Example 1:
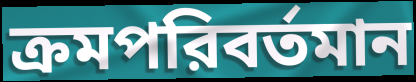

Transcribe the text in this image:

ক্রমপরিবর্তমান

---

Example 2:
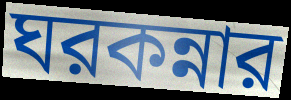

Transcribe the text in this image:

ঘরকন্নার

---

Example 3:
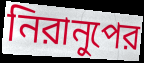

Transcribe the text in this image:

নিরানুপের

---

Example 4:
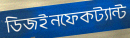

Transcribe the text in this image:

ডিজইনফেকট্যান্ট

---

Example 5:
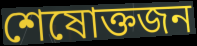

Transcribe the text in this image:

শেষোক্তজন